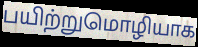
பயிற்றுமொழியாக